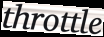
throttle